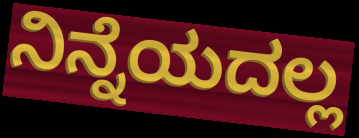
ನಿನ್ನೆಯದಲ್ಲ